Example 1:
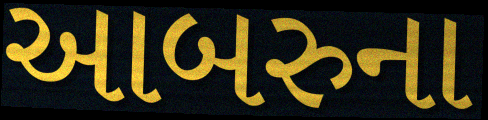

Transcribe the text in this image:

આબરુના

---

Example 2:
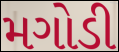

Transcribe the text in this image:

મગોડી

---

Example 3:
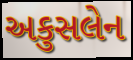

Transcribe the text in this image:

અકુસલેન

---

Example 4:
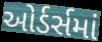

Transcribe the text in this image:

ઓર્ડર્સમાં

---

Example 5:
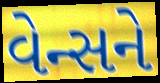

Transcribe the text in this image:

વેન્સને